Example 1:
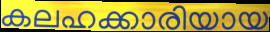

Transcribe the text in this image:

കലഹക്കാരിയായ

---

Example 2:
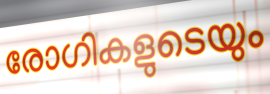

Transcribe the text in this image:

രോഗികളുടെയും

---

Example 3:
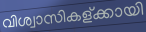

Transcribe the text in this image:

വിശ്വാസികള്ക്കായി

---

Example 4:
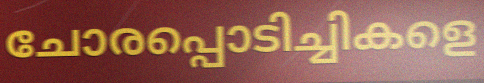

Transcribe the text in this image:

ചോരപ്പൊടിച്ചികളെ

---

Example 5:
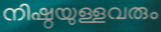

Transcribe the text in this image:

നിഷ്ഠയുള്ളവരും